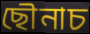
ছৌনাচ